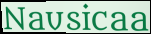
Nausicaa